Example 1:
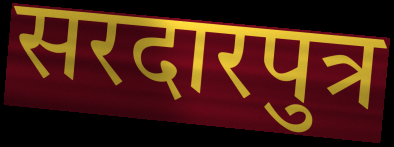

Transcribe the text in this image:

सरदारपुत्र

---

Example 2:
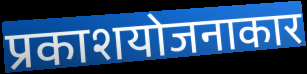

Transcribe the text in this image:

प्रकाशयोजनाकार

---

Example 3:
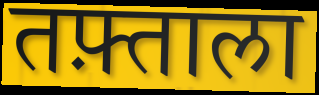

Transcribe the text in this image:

तफ़्ताला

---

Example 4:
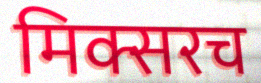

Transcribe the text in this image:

मिक्सरच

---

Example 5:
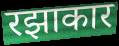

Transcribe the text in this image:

रझाकार